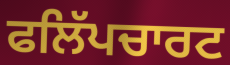
ਫਲਿੱਪਚਾਰਟ